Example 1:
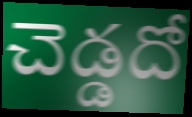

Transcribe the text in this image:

చెడ్డదో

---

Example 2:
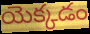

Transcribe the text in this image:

యెక్కడం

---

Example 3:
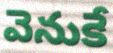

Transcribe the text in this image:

వెనుకే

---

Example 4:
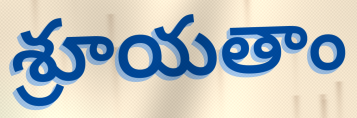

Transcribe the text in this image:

శ్రూయతాం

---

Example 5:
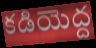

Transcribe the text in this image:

కడియెద్ద